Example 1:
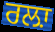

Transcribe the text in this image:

ਰਲ਼ਾ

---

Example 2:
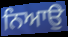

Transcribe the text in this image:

ਨਿਆਉ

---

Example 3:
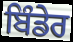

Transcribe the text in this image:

ਬਿੰਡੇਰ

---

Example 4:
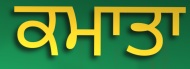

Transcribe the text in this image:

ਕਮਾਤਾ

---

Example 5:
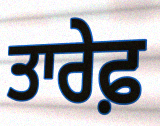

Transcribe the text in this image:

ਤਾਰੇਫ਼